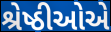
શ્રેષ્ઠીઓએ